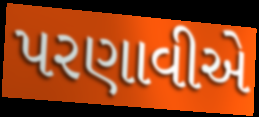
પરણાવીએ